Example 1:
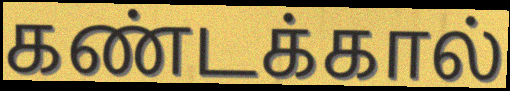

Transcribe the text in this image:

கண்டக்கால்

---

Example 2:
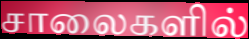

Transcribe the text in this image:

சாலைகளில்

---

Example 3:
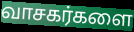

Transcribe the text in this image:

வாசகர்களை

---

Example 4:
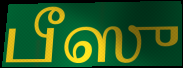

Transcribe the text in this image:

பீஸு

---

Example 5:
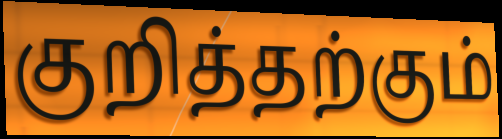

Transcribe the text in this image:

குறித்தற்கும்